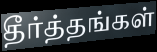
தீர்த்தங்கள்